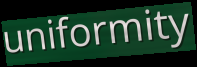
uniformity